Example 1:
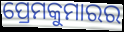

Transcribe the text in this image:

ପ୍ରେମକୁମାରର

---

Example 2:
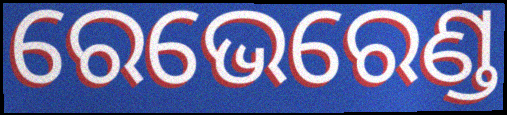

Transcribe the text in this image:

ରେଭେରେଣ୍ଡ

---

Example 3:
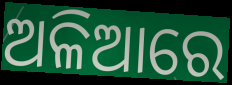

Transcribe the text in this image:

ଅଳିଆରେ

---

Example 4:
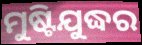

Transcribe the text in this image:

ମୁଷ୍ଟିଯୁଦ୍ଧର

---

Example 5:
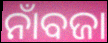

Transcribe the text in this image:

ନାଁବଜା